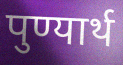
पुण्यार्थ